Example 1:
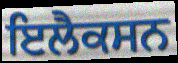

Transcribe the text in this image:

ਇਲੈਕਸਨ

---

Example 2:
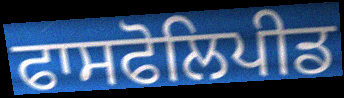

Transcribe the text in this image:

ਫਾਸਫੋਲਿਪੀਡ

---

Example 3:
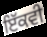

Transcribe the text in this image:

ਇੱਕਵੀ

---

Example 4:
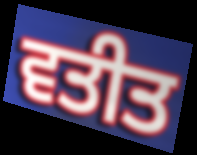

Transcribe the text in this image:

ਵਤੀਤ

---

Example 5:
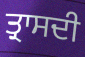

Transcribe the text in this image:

ਤ੍ਰਾਸਦੀ